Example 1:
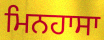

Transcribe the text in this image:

ਮਿਨਹਾਸਾ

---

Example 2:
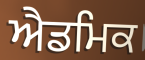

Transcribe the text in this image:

ਐਡਮਿਕ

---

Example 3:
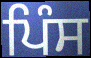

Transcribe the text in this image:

ਪਿੰਸ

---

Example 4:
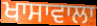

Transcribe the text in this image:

ਖਾਸਾਵਾਲਾ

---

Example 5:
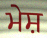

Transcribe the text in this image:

ਮੇਸ਼